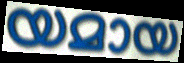
യമായ